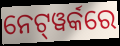
ନେଟ୍‍ୱର୍କରେ